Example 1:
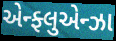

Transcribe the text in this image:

એન્ફ્લુએન્ઝા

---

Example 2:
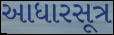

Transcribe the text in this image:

આધારસૂત્ર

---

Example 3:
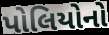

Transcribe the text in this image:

પોલિયોનો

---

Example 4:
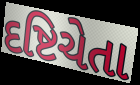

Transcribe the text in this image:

દષ્ટિચેતા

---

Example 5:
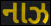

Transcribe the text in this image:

નાઝ